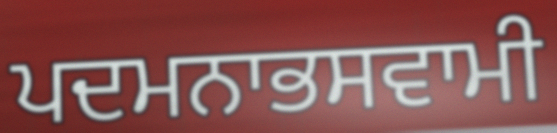
ਪਦਮਨਾਭਸਵਾਮੀ